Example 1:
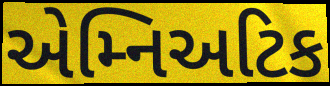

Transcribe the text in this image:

એમ્નિઅટિક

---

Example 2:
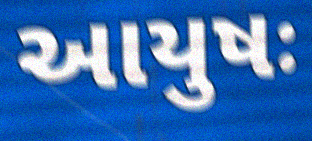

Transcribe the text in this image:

આયુષઃ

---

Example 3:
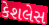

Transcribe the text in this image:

કેશલેસ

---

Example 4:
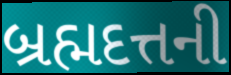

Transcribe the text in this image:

બ્રહ્મદત્તની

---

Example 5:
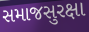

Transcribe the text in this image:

સમાજસુરક્ષા